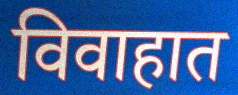
विवाहात